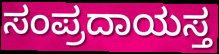
ಸಂಪ್ರದಾಯಸ್ತ